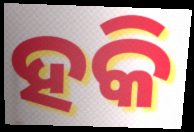
ହକି